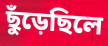
ছুঁড়েছিলে